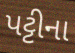
પટ્ટીના